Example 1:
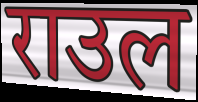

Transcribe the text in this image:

राउल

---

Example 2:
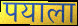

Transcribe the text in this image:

पयाला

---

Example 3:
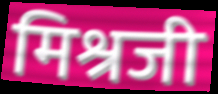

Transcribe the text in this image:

मिश्रजी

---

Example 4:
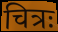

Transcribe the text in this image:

चित्रः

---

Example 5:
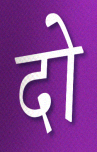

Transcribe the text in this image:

दो